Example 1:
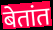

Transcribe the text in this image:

बेतांत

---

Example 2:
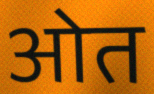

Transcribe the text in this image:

ओत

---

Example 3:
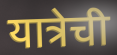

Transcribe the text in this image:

यात्रेची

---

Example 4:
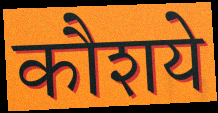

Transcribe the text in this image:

कौशये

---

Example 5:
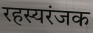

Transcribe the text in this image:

रहस्यरंजक